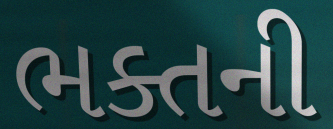
ભક્તની